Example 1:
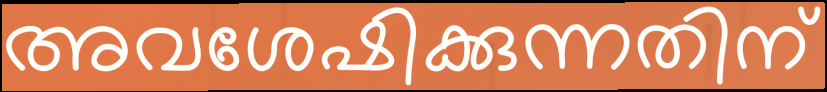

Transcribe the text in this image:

അവശേഷിക്കുന്നതിന്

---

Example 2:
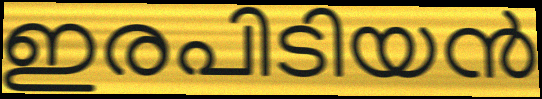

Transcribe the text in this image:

ഇരപിടിയൻ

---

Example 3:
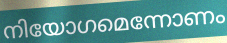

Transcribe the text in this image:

നിയോഗമെന്നോണം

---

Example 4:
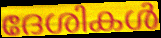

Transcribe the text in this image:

ദേശികൾ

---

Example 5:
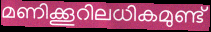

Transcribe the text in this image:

മണിക്കൂറിലധികമുണ്ട്